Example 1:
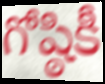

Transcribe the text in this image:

గోష్ఠికీ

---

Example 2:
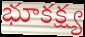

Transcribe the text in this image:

భూకక్ష్య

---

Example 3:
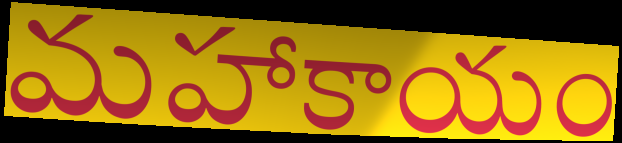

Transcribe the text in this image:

మహాకాయం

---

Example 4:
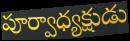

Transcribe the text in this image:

పూర్వాధ్యక్షుడు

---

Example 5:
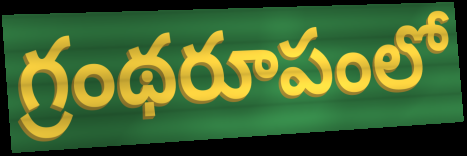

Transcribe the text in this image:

గ్రంథరూపంలో